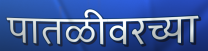
पातळीवरच्या